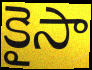
కైసా